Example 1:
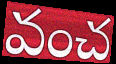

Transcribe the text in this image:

వంచ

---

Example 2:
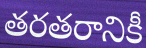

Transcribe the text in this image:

తరతరానికీ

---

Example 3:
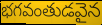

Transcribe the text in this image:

భగవంతుడవైన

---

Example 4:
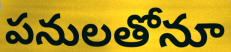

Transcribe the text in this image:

పనులతోనూ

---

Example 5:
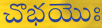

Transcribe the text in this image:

చొభయొః